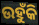
ଉହୁଁକି